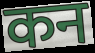
कन